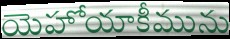
యెహోయాకీమును